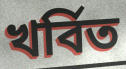
খর্বিত